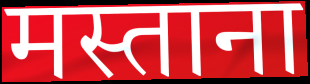
मस्ताना